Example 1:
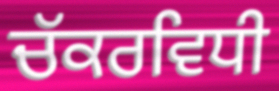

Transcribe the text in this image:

ਚੱਕਰਵਿਧੀ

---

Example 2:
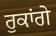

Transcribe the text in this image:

ਰੁਕਾਂਗੇ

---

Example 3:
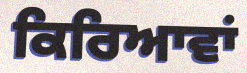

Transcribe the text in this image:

ਕਿਰਿਆਵਾਂ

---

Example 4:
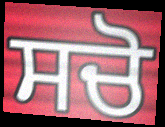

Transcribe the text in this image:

ਸਚੋ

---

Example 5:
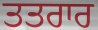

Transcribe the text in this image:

ਤਤਰਾਰ